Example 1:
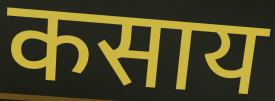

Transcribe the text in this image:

कसाय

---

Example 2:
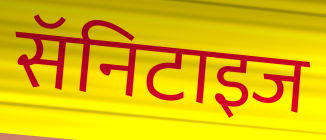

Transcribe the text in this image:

सॅनिटाइज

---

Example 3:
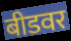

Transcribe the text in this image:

बीडवर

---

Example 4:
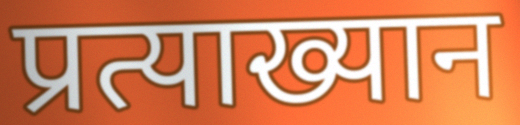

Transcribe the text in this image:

प्रत्याख्यान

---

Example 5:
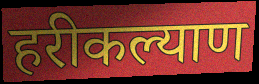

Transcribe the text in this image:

हरीकल्याण